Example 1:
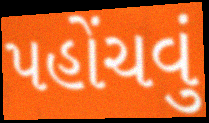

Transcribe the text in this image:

પહોંચવું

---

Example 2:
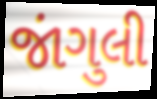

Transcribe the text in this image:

જાંગુલી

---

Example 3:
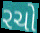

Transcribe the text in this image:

રચો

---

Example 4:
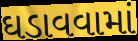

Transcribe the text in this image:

ઘડાવવામાં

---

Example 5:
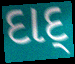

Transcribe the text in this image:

દાદ્